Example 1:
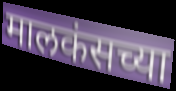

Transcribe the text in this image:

मालकंसच्या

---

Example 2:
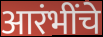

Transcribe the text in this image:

आरंभींचे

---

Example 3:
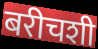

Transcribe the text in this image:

बरीचशी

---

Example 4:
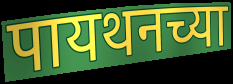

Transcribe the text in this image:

पायथनच्या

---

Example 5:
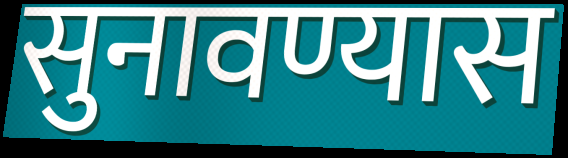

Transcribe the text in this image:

सुनावण्यास